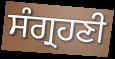
ਸੰਗ੍ਰਹਣੀ